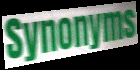
Synonyms